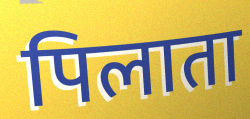
पिलाता